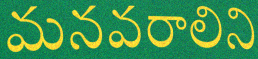
మనవరాలిని